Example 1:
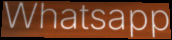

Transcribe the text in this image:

Whatsapp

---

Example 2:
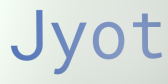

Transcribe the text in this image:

Jyot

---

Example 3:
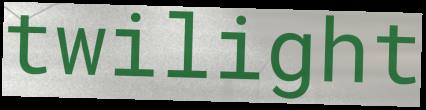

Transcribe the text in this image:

twilight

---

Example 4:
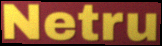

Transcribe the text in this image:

Netru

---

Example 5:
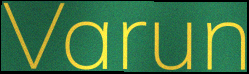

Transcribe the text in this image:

Varun